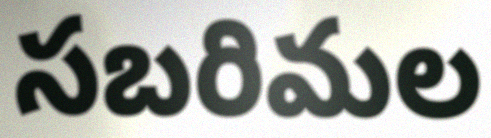
సబరిమల